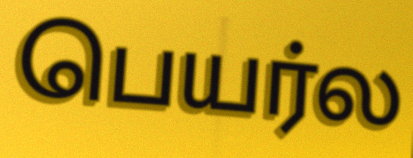
பெயர்ல